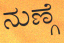
ನುಣ್ಗೆ